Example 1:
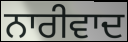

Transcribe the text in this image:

ਨਾਰੀਵਾਦ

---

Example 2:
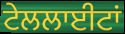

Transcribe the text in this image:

ਟੇਲਲਾਈਟਾਂ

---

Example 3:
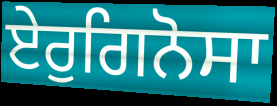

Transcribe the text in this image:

ਏਰੁਗਿਨੋਸਾ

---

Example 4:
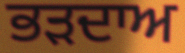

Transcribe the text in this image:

ਭੜਦਾਅ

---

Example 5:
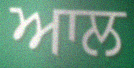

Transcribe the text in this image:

ਆਲ